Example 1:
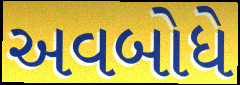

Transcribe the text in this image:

અવબોધે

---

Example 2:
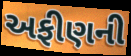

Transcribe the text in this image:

અફીણની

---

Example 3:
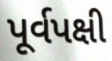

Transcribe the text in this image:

પૂર્વપક્ષી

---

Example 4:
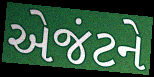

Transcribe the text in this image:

એજંટને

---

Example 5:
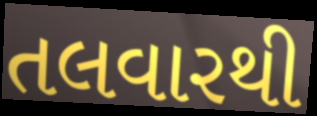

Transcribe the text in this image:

તલવારથી